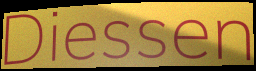
Diessen